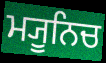
ਮ੍ਯੂਨਿਚ